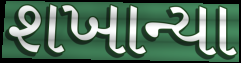
શખાન્યા